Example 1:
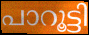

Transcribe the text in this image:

പാറൂട്ടി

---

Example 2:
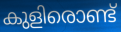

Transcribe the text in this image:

കുളിരൊണ്ട്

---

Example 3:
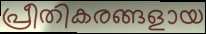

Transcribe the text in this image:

പ്രീതികരങ്ങളായ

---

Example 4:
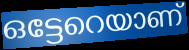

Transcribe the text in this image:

ഒട്ടേറെയാണ്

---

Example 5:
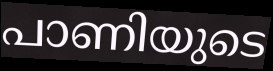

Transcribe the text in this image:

പാണിയുടെ